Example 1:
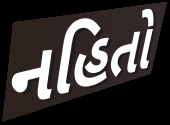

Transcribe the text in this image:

નહિતો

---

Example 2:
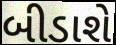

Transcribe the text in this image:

બીડાશે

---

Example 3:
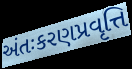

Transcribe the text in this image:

અંતઃકરણપ્રવૃત્તિ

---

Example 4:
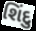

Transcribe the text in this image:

શિંદુ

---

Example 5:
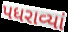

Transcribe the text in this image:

પધરાવ્યાં